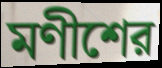
মণীশের